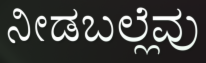
ನೀಡಬಲ್ಲೆವು